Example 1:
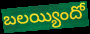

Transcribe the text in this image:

బలయ్యిందో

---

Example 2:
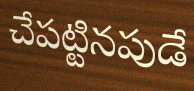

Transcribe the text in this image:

చేపట్టినపుడే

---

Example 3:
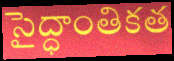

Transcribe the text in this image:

సైద్ధాంతికత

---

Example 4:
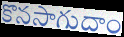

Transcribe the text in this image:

కొనసాగుదాం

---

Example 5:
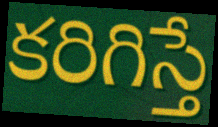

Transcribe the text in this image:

కరిగిస్తే